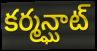
కర్మన్ఘాట్